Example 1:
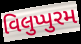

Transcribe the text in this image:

વિલુપ્પુરમ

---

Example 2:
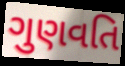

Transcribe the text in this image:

ગુણવતિ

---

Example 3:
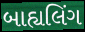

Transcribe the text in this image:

બાહ્યલિંગ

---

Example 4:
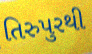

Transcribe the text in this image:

તિરુપુરથી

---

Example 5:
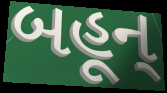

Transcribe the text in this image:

બહૂન્